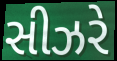
સીઝરે